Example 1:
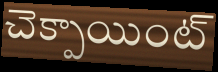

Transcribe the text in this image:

చెక్పాయింట్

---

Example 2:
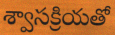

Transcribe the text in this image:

శ్వాసక్రియతో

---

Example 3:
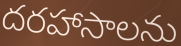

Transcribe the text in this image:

దరహాసాలను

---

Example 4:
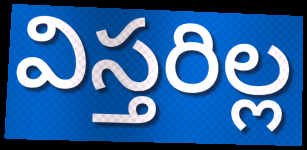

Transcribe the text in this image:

విస్తరిల్ల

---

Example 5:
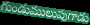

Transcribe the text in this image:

గుండుములుపుగాడు